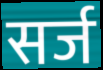
सर्ज